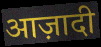
आज़ादी